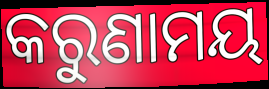
କରୁଣାମୟ